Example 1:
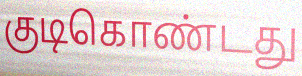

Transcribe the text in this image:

குடிகொண்டது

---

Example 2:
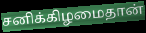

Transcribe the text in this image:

சனிக்கிழமைதான்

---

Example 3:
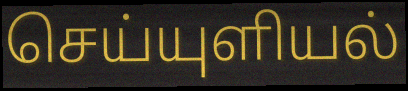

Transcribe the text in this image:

செய்யுளியல்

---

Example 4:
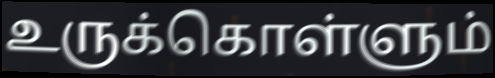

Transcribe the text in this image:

உருக்கொள்ளும்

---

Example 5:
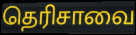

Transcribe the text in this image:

தெரிசாவை